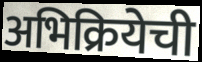
अभिक्रियेची